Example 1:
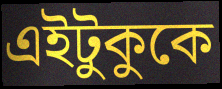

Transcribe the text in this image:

এইটুকুকে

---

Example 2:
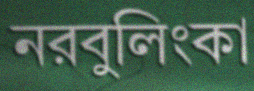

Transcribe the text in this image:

নরবুলিংকা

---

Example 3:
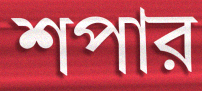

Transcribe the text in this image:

শপার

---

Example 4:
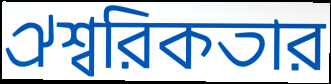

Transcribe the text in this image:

ঐশ্বরিকতার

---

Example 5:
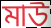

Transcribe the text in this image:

মাউ